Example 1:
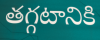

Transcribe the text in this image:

తగ్గటానికి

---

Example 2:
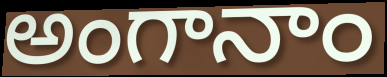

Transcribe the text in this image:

అంగానాం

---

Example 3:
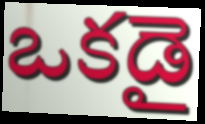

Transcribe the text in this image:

ఒకడై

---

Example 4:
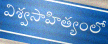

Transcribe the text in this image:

విశ్వసాహిత్యంలో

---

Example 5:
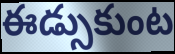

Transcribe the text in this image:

ఈడ్సుకుంట